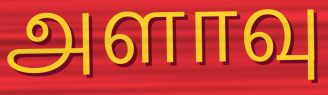
அளாவு